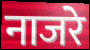
नाजरे